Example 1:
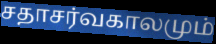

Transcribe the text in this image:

சதாசர்வகாலமும்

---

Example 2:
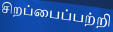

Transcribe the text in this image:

சிறப்பைப்பற்றி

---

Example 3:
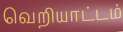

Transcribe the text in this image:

வெறியாட்டம்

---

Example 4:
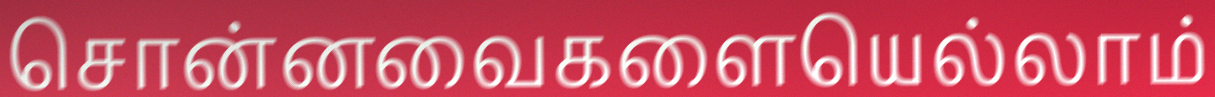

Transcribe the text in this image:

சொன்னவைகளையெல்லாம்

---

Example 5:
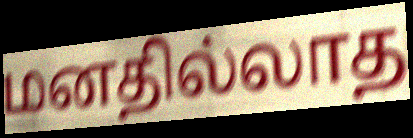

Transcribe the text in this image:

மனதில்லாத